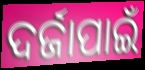
ଦର୍ଜାପାଇଁ